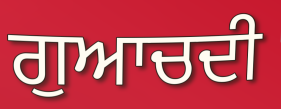
ਗੁਆਚਦੀ